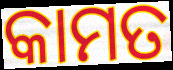
କାମତ